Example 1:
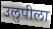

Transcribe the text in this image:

उलुपीला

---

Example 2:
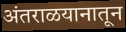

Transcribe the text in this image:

अंतराळयानातून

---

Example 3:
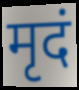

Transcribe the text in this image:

मृदं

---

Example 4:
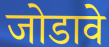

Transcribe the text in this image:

जोडावे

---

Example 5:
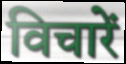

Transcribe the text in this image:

विचारें